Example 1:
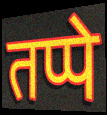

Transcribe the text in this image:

तप्पे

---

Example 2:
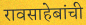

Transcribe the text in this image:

रावसाहेबांची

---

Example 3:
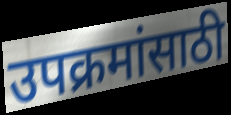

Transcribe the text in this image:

उपक्रमांसाठी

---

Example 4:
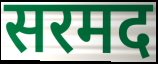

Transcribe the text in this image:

सरमद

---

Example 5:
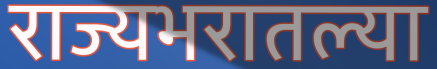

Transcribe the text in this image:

राज्यभरातल्या